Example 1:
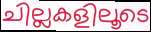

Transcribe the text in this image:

ചില്ലകളിലൂടെ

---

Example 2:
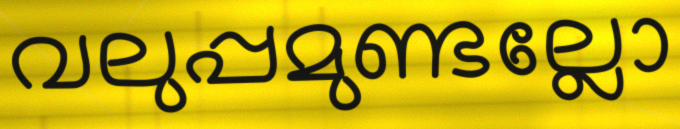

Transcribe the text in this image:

വലുപ്പമുണ്ടല്ലോ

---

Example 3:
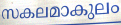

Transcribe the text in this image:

സകലമാകുലം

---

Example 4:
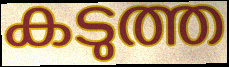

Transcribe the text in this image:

കടുത്ത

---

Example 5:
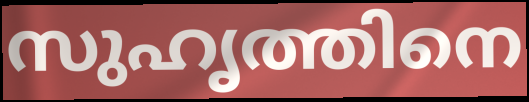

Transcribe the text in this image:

സുഹൃത്തിനെ